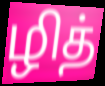
ழித்